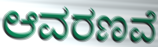
ಆವರಣವೆ